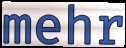
mehr